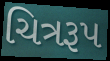
ચિત્રરૂપ